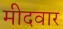
मीदवार